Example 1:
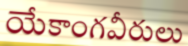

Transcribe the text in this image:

యేకాంగవీరులు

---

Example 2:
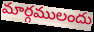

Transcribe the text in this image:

మార్గములందు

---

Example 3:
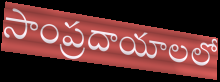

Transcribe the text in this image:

సాంప్రదాయాలలో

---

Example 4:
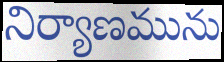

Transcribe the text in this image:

నిర్యాణమును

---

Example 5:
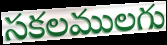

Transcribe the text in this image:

సకలములగు